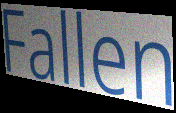
Fallen